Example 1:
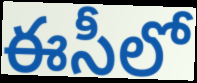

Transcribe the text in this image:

ఈసీలో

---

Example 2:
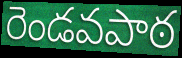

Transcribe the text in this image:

రెండవపాఠ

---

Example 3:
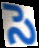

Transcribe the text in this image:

సె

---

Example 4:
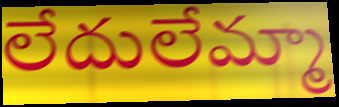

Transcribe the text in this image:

లేదులేమ్మా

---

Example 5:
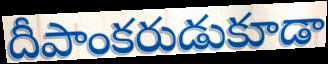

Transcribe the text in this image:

దీపాంకరుడుకూడా